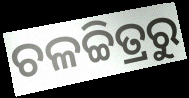
ଚଳଚ୍ଚିତ୍ରରୁ